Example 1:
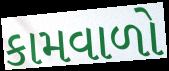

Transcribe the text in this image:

કામવાળો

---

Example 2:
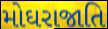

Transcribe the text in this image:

મોઘરાજાતિ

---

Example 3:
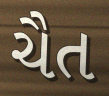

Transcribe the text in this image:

ચૈત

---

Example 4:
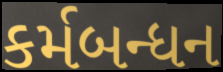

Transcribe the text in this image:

કર્મબન્ધન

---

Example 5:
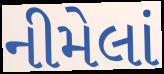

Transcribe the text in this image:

નીમેલાં